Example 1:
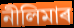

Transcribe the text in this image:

নীলিমাৰ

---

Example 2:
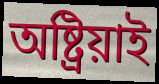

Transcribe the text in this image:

অষ্ট্ৰিয়াই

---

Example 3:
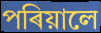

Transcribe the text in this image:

পৰিয়ালে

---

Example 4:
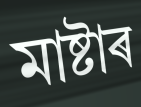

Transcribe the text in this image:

মাষ্টাৰ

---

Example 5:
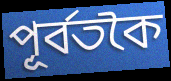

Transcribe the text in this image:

পূৰ্বতকৈ